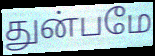
துன்பமே